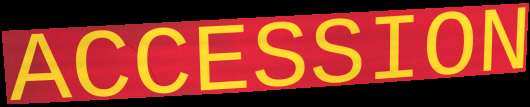
ACCESSION